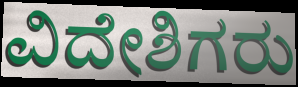
ವಿದೇಶಿಗರು